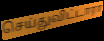
செய்துவிட்டாரா